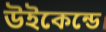
উইকেন্ডে